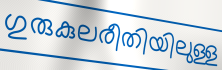
ഗുരുകുലരീതിയിലുള്ള